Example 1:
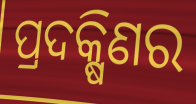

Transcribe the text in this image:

ପ୍ରଦକ୍ଷିଣର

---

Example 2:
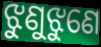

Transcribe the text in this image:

ଝୁଣୁଝୁଣେ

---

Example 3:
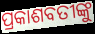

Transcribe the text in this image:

ପ୍ରକାଶବତୀଙ୍କୁ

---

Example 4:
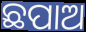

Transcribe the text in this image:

ଛପାଅ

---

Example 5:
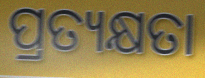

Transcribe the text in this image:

ପ୍ରତ୍ୟକ୍ଷତା